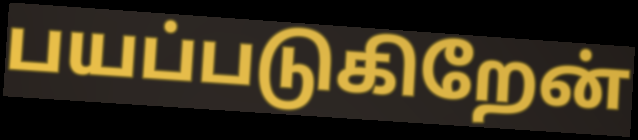
பயப்படுகிறேன்